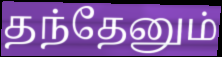
தந்தேனும்